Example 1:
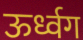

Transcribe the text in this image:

ऊर्ध्वग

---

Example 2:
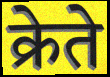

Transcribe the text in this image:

क्रेते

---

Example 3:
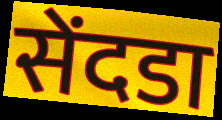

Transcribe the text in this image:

सेंदडा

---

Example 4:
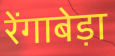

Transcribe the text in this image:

रेंगाबेड़ा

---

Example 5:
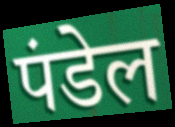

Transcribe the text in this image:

पंडेल